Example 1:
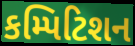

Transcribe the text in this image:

કમ્પિટિશન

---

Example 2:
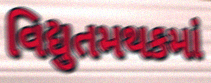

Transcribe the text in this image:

વિદ્યુતમથકમાં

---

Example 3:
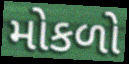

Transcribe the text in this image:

મોકળો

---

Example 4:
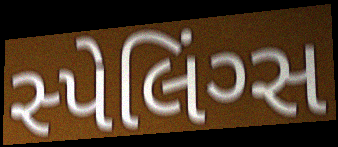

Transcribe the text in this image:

સ્પેલિંગ્સ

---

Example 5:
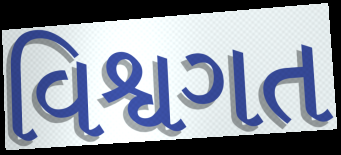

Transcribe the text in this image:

વિશ્વગત